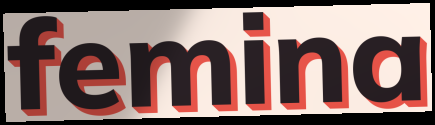
femina